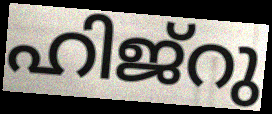
ഹിജ്റു